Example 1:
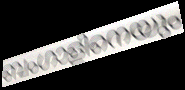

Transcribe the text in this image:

ബംഗാളിനെയും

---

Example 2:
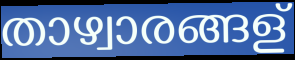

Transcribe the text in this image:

താഴ്വാരങ്ങള്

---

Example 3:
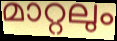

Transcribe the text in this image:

മാറ്റലും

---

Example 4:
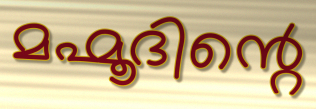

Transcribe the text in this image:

മഹ്മൂദിന്റെ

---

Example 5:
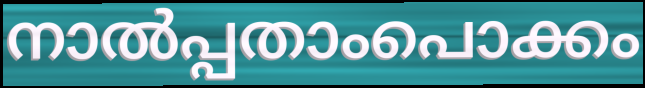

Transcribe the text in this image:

നാൽപ്പതാംപൊക്കം